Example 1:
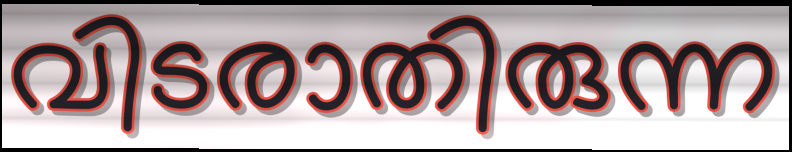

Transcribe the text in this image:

വിടരാതിരുന്ന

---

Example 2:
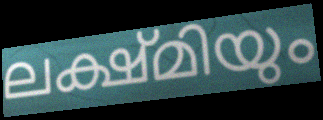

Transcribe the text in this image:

ലക്ഷ്മിയും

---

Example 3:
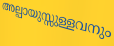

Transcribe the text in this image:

അല്പായുസ്സുള്ളവനും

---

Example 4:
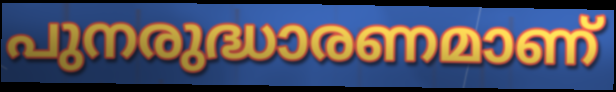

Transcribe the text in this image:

പുനരുദ്ധാരണമാണ്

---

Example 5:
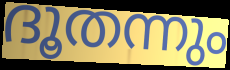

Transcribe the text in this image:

ദൂതന്നും